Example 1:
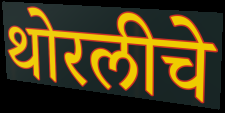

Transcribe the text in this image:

थोरलीचे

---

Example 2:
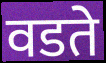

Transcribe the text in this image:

वडते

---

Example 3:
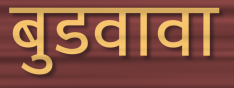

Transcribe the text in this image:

बुडवावा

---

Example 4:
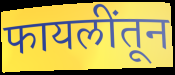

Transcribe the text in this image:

फायलींतून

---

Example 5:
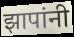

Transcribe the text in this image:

झापांनी